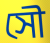
সৌ